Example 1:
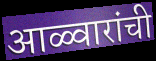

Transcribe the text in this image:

आळ्वारांची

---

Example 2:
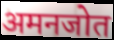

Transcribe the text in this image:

अमनजोत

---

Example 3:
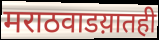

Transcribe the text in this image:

मराठवाडय़ातही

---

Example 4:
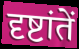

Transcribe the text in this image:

दृष्टांतें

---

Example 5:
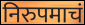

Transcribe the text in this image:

निरुपमाचं